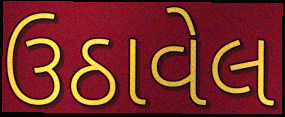
ઉઠાવેલ